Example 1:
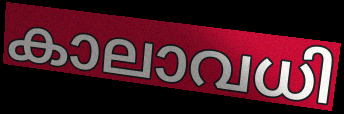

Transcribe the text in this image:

കാലാവധി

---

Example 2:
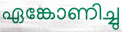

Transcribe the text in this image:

ഏങ്കോണിച്ചു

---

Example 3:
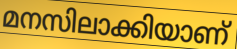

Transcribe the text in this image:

മനസിലാക്കിയാണ്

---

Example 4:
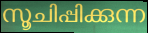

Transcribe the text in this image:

സൂചിപ്പിക്കുന്ന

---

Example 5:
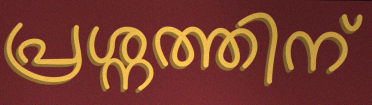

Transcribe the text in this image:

പ്രശ്നത്തിന്